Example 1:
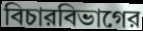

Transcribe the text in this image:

বিচারবিভাগের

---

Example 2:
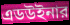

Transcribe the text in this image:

এডউইনার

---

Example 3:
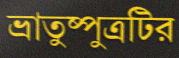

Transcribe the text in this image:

ভ্রাতুষ্পুত্রটির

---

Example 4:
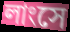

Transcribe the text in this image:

লাংসে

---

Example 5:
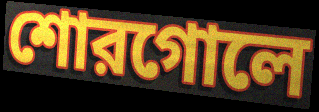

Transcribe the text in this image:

শোরগোলে